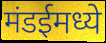
मंडईमध्ये